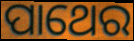
ପାଥେର